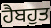
ਹੈਬਹੁਤ